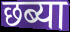
छब्या